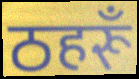
ठहरूँ